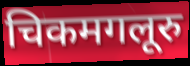
चिकमगलूरु